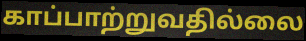
காப்பாற்றுவதில்லை